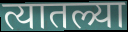
त्यातल्या